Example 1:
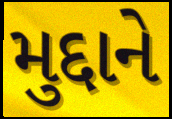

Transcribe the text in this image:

મુદ્દાને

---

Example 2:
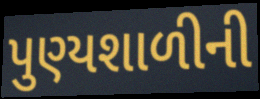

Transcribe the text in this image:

પુણ્યશાળીની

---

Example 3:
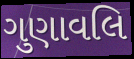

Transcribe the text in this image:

ગુણાવલિ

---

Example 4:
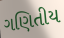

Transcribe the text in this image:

ગણિતીય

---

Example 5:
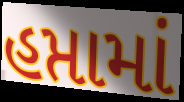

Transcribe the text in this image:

હપ્તામાં